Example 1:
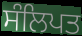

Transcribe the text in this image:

ਸੰਲਿਪਤ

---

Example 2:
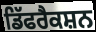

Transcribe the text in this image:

ਡਿੱਫਰੈਕਸ਼ਨ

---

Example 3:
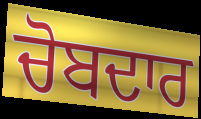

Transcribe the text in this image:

ਚੋਬਦਾਰ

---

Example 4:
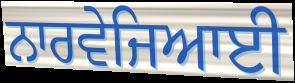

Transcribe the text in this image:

ਨਾਰਵੇਜਿਆਈ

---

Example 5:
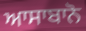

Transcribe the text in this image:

ਆਸਾਬਾਨੋ